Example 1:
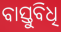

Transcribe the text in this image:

ବାସ୍ତୁବିଧି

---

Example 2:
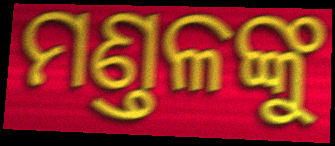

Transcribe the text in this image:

ମଣ୍ତଳଙ୍କୁ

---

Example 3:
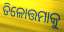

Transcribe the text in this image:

ତିଳୋତ୍ତମାକୁ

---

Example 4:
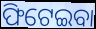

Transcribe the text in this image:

ଫିଟେଇବା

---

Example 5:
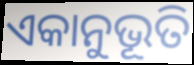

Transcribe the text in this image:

ଏକାନୁଭୂତି